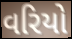
વરિયો